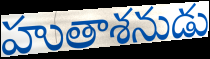
హుతాశనుడు